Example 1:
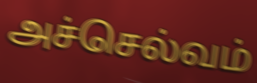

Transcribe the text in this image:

அச்செல்வம்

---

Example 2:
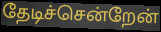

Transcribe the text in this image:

தேடிச்சென்றேன்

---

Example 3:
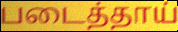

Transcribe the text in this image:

படைத்தாய்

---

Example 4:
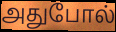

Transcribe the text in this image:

அதுபோல்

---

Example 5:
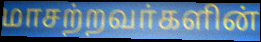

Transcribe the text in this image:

மாசற்றவர்களின்